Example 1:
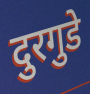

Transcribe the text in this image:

दुरगुडे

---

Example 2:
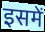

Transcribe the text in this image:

इसमें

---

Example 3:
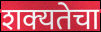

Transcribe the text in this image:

शक्‍यतेचा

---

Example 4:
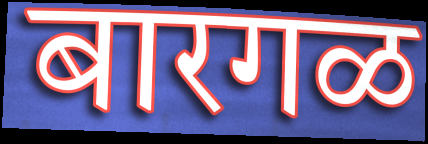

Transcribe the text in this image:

बारगळ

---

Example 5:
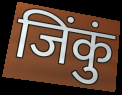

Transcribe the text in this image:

जिंकुं